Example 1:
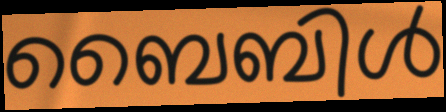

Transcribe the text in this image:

ബൈബിൾ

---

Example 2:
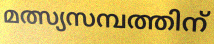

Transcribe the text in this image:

മത്സ്യസമ്പത്തിന്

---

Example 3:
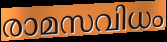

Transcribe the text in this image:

രാമസവിധം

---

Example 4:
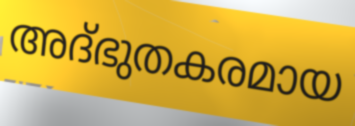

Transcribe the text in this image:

അദ്ഭുതകരമായ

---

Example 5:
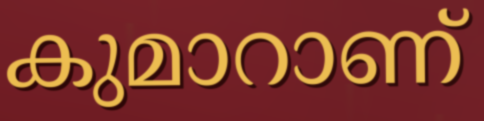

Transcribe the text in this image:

കുമാറാണ്